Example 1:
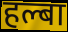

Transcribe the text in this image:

हल्बा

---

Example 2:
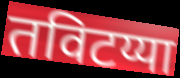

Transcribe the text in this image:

तविटय्या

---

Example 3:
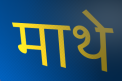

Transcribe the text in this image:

माथे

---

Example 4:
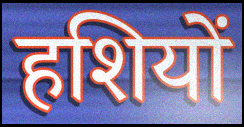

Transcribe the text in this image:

हशियों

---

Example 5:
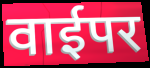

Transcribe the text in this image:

वाईपर